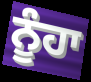
ਨੂੰਹਾ